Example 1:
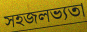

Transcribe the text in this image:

সহজলভ্যতা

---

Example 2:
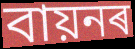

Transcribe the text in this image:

বায়নৰ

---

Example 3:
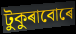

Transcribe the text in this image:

টুকুৰাবোৰে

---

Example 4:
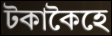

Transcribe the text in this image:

টকাকৈহে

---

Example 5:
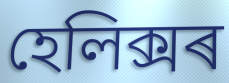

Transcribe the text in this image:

হেলিক্সৰ